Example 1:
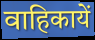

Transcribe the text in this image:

वाहिकायें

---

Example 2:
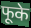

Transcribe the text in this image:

फूके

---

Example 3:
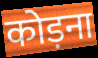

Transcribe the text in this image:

कोड़ना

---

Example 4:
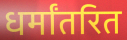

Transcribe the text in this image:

धर्मांतरित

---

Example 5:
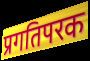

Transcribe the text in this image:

प्रगतिपरक